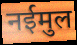
नईमुल